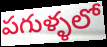
పగుళ్ళలో